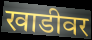
खाडीवर